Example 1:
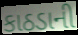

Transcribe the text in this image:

કાઠડાની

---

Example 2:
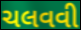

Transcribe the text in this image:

ચલવવી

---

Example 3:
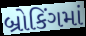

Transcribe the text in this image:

બ્રોકિંગમાં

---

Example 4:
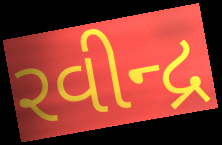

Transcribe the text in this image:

રવીન્દ્ર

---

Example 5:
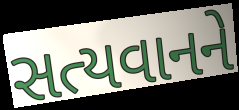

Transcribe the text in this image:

સત્યવાનને